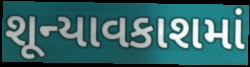
શૂન્યાવકાશમાં